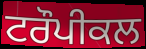
ਟਰੌਪੀਕਲ